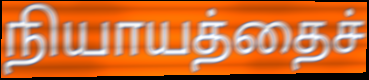
நியாயத்தைச்